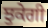
ਝੁਕੇਗੀ